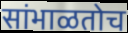
सांभाळतोच